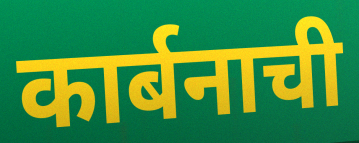
कार्बनाची